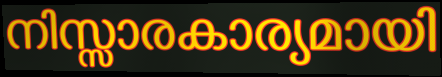
നിസ്സാരകാര്യമായി